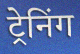
ट्रेनिंग